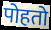
पोहतो